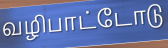
வழிபாட்டோடு